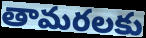
తామరలకు